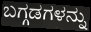
ಬಗ್ಗಡಗಳನ್ನು